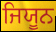
ਜਿਯੂਨ